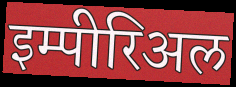
इम्पीरिअल